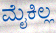
ಮೈಕಿಲ್ಲ